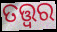
ତତ୍ତ୍ବର